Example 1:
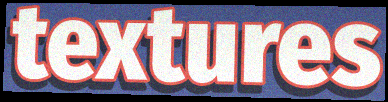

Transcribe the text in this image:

textures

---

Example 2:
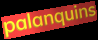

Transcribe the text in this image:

palanquins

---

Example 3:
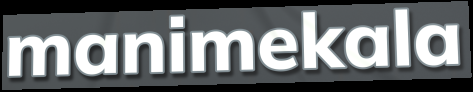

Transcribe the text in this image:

manimekala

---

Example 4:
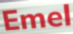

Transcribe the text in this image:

Emel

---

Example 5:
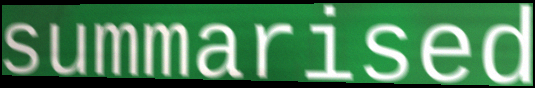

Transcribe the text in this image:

summarised